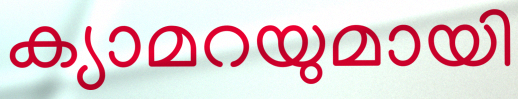
ക്യാമറയുമായി